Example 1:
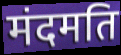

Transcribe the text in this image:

मंदमति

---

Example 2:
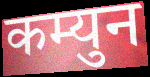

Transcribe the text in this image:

कम्युन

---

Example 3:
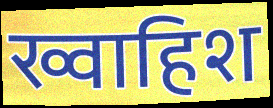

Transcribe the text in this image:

ख्वाहिश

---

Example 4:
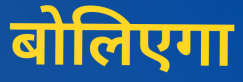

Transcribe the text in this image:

बोलिएगा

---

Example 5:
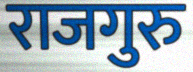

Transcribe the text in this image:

राजगुरु